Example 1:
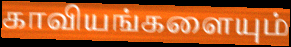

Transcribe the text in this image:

காவியங்களையும்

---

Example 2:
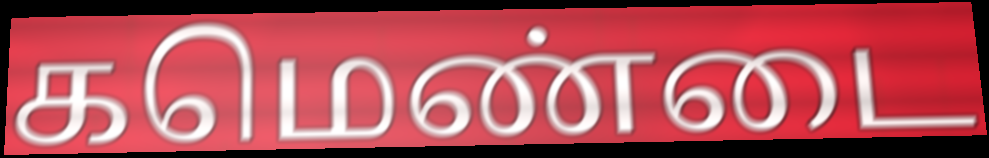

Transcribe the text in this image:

கமெண்டை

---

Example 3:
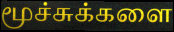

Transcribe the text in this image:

மூச்சுக்களை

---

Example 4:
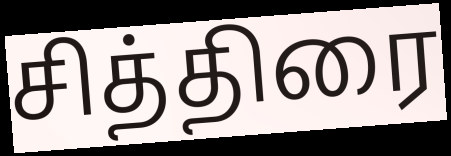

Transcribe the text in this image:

சித்திரை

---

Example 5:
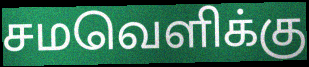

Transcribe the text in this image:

சமவெளிக்கு